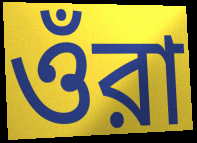
ওঁরা